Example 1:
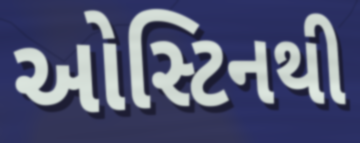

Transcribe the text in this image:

ઓસ્ટિનથી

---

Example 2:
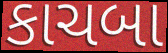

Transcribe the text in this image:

કાચબા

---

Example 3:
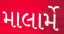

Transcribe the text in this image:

માલાર્મે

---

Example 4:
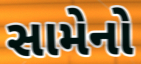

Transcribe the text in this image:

સામેનો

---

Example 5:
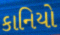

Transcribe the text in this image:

કાનિયો